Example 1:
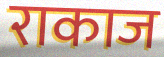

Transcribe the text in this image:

राकाज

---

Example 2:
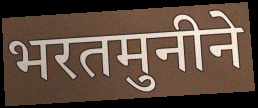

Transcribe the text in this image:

भरतमुनीने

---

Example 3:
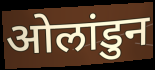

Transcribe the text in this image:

ओलांडुन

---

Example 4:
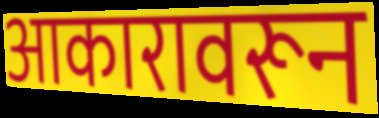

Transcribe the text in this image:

आकारावरून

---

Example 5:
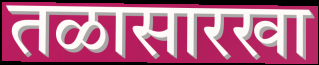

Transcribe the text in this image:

तळासारखा